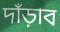
দাঁড়াব